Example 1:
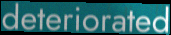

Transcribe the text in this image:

deteriorated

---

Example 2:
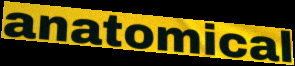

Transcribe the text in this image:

anatomical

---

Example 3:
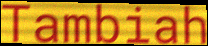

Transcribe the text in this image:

Tambiah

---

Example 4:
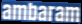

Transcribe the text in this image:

ambaram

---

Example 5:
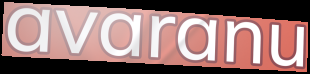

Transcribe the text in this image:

avaranu